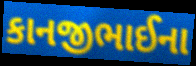
કાનજીભાઈના